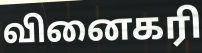
வினைகரி